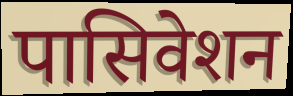
पासिवेशन